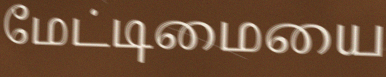
மேட்டிமையை